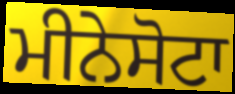
ਮੀਨੇਸੋਟਾ